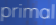
primal